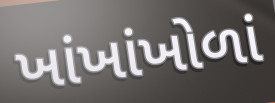
ખાંખાંખોળાં